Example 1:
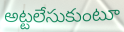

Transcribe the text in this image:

అట్టలేసుకుంటూ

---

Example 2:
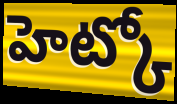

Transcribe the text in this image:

హెట్కో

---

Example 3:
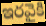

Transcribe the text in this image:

ఇరవైకి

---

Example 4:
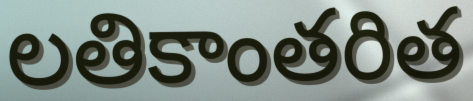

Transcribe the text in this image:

లతికాంతరిత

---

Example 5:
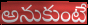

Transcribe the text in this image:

అనుకుంటే